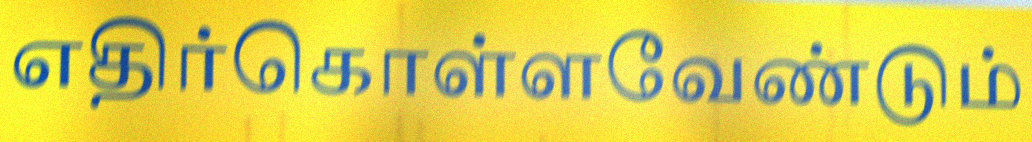
எதிர்கொள்ளவேண்டும்